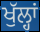
ਖੁੱਲ੍ਹਾਂ